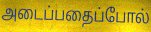
அடைப்பதைப்போல்